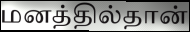
மனத்தில்தான்